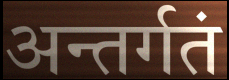
अन्तर्गतं